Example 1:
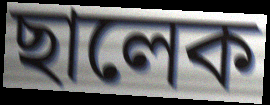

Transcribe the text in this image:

ছালেক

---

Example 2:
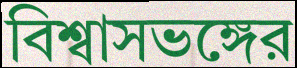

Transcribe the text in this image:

বিশ্বাসভঙ্গের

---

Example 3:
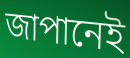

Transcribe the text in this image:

জাপানেই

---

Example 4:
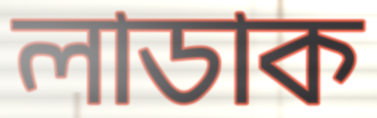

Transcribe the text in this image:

লাডাক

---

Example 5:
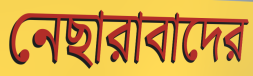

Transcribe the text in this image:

নেছারাবাদের